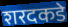
शरदकडे